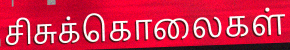
சிசுக்கொலைகள்